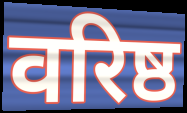
वरिष्ठ